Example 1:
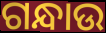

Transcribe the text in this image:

ଗନ୍ଧାଉ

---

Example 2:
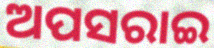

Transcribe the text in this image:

ଅପସରାଇ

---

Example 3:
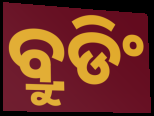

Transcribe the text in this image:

ବ୍ରୁଡିଂ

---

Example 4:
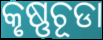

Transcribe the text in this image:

କୃଷ୍ଣଚୂଡା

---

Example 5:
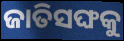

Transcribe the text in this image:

ଜାତିସଙ୍ଘକୁ